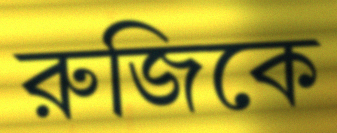
রুজিকে